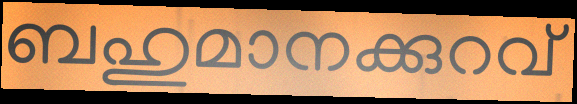
ബഹുമാനക്കുറവ്